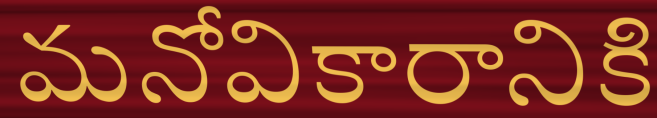
మనోవికారానికి